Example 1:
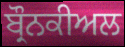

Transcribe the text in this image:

ਬ੍ਰੌਨਕੀਅਲ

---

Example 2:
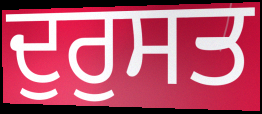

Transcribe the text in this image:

ਦੁਰੁਸਤ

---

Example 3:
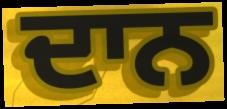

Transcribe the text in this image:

ਦਾਨ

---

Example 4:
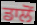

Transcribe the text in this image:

ਡਾਲੋਂ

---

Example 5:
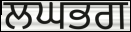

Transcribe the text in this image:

ਲਘਭਗ